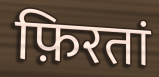
फ़िरतां